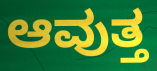
ಆವುತ್ತ